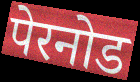
पेरनोड